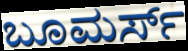
ಬೂಮರ್ಸ್